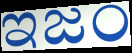
ఇజం